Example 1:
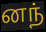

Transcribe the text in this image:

னந்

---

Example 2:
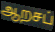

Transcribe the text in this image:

ஆறசப்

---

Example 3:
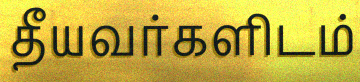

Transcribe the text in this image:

தீயவர்களிடம்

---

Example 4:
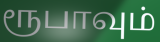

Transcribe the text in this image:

ரூபாவும்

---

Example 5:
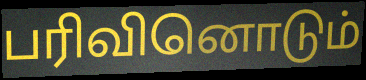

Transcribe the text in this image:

பரிவினொடும்